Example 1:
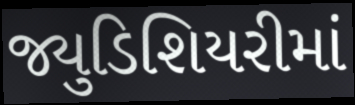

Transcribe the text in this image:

જ્યુડિશિયરીમાં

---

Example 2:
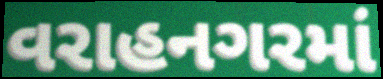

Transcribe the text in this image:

વરાહનગરમાં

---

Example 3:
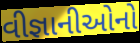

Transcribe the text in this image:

વીજ્ઞાનીઓનો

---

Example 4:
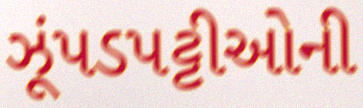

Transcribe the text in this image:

ઝૂંપડપટ્ટીઓની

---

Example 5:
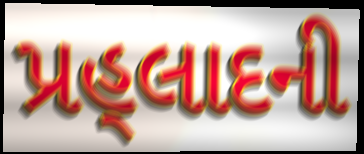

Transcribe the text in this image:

પ્રહ્‌લાદની